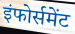
इंफोर्समेंट